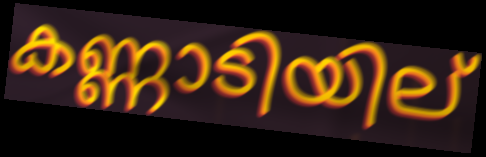
കണ്ണാടിയില്